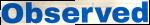
Observed